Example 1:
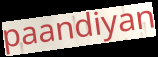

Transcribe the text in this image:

paandiyan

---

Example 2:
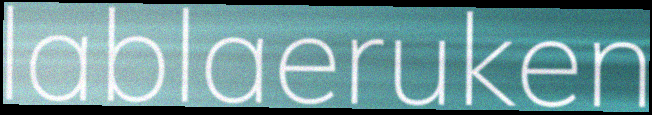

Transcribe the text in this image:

lablaeruken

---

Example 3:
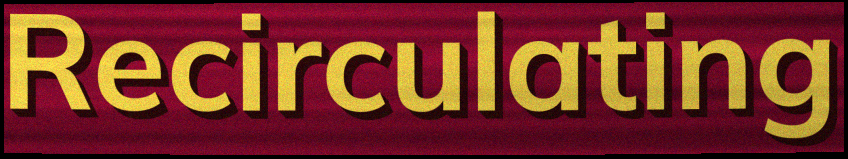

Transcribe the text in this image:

Recirculating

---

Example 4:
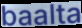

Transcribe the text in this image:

baalta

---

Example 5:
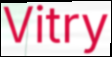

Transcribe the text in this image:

Vitry